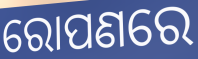
ରୋପଣରେ